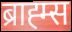
ब्राह्म्स